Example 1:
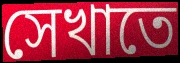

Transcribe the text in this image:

সেখাতে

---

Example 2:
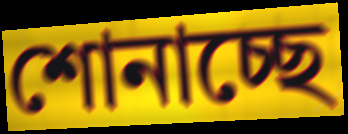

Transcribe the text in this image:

শোনাচ্ছে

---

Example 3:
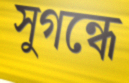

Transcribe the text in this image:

সুগন্ধে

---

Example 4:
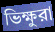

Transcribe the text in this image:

ভিক্ষুরা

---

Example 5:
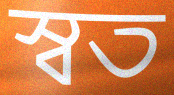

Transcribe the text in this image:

স্বত